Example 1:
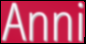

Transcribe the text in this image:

Anni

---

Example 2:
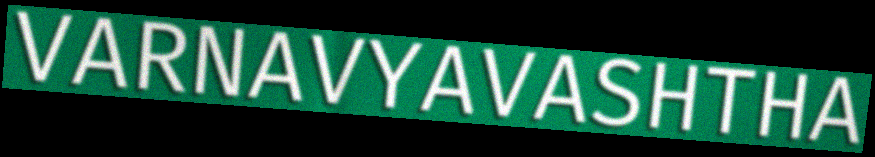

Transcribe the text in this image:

VARNAVYAVASHTHA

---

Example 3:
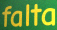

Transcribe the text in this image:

falta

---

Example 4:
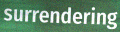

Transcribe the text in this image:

surrendering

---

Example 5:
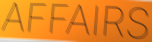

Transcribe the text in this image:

AFFAIRS